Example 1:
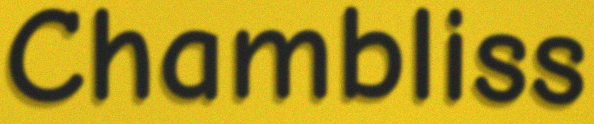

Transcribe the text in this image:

Chambliss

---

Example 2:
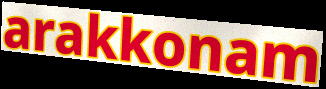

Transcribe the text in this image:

arakkonam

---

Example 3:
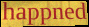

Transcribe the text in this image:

happned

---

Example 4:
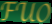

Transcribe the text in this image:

FUO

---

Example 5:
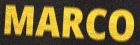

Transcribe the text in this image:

MARCO